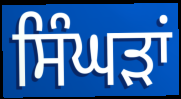
ਸਿੰਘੜਾਂ